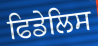
ਫਿਡੇਲਿਸ